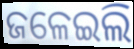
ଜଳେଇଲି